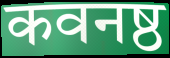
कवनष्ठ